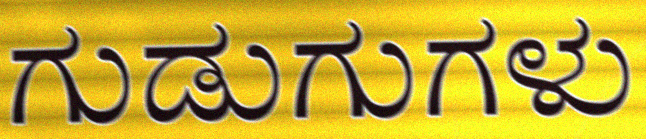
ಗುಡುಗುಗಳು